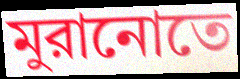
মুরানোতে